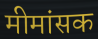
मीमांसक